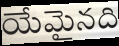
యేమైనది